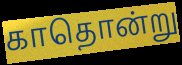
காதொன்று